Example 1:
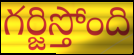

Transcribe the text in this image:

గర్జిస్తోంది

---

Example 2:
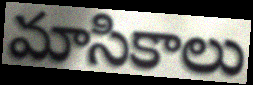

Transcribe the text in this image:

మాసికాలు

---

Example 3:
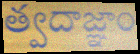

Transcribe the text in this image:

త్వదాజ్ఞాం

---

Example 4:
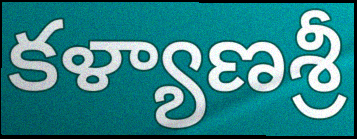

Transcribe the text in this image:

కళ్యాణశ్రీ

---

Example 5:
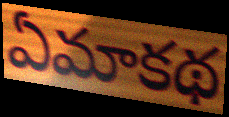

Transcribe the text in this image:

ఏమాకథ